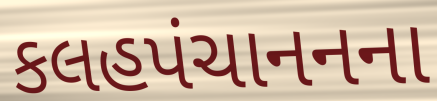
કલહપંચાનનના